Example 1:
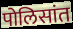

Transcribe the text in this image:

पोलिसांत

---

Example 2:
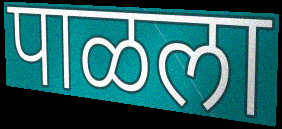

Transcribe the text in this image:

पाळला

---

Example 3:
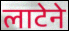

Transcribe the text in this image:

लाटेने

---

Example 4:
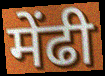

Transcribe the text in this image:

मेंढी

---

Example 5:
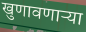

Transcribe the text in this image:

खुणावणाऱ्या